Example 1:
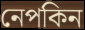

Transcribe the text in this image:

নেপকিন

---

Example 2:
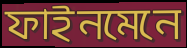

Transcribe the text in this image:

ফাইনমেনে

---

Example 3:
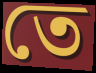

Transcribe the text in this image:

তে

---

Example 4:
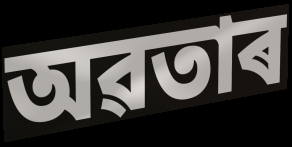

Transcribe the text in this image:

অৱতাৰ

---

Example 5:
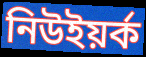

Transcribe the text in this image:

নিউইয়ৰ্ক